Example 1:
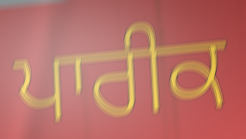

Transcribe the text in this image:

ਪਾਰੀਕ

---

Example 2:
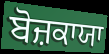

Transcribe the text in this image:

ਬੋਜ਼ਕਾਯਾ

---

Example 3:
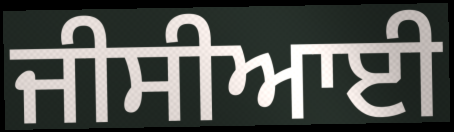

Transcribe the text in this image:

ਜੀਸੀਆਈ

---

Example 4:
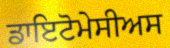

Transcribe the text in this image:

ਡਾਇਟੋਮੇਸੀਅਸ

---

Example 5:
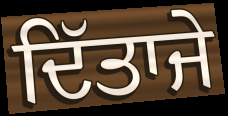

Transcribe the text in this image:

ਦਿੱਤਾਜੇ